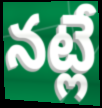
నట్లే